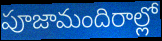
పూజామందిరాల్లో